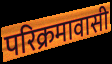
परिक्रमावासी